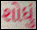
શોધું